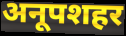
अनूपशहर